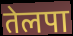
तेलपा